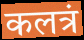
कलत्रं